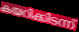
കയറിക്കിടന്ന്